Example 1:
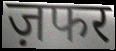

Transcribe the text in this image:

ज़फर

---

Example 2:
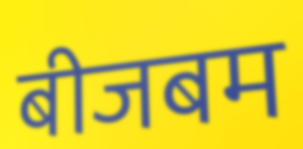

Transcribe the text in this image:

बीजबम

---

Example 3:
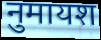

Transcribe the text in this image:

नुमायश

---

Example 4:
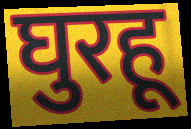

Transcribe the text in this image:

घुरहू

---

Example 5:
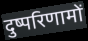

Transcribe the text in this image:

दुष्परिणामों